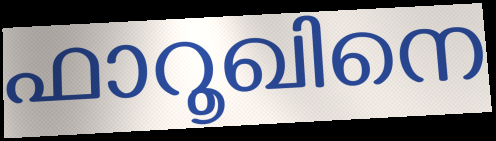
ഫാറൂഖിനെ